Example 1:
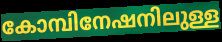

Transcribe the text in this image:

കോമ്പിനേഷനിലുള്ള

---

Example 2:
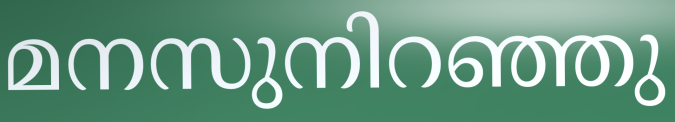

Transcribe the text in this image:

മനസുനിറഞ്ഞു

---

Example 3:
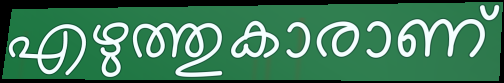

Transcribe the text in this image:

എഴുത്തുകാരാണ്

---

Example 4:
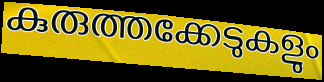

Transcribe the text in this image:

കുരുത്തക്കേടുകളും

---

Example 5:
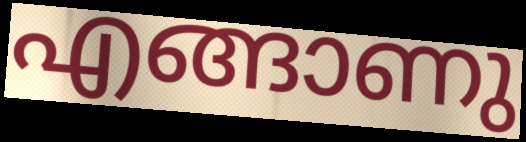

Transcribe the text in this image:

എങ്ങാണു